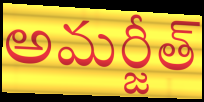
అమర్జీత్